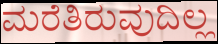
ಮರೆತಿರುವುದಿಲ್ಲ